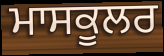
ਮਾਸਕੂਲਰ